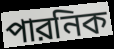
পারনিক